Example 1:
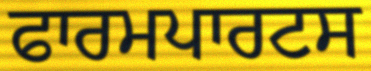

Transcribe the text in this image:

ਫਾਰਮਪਾਰਟਸ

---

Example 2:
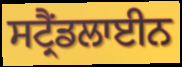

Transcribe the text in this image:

ਸਟ੍ਰੈਂਡਲਾਈਨ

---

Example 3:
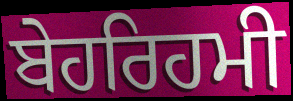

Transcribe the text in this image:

ਬੇਹਰਿਹਮੀ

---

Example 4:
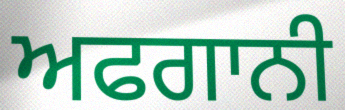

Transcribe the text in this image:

ਅਫਗਾਨੀ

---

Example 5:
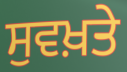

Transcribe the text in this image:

ਸੁਵਖ਼ਤੇ